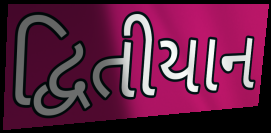
દ્વિતીયાન